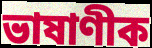
ভাষাণীক